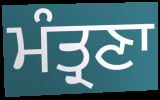
ਮੰਤ੍ਰਣਾ